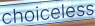
choiceless